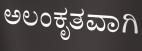
ಅಲಂಕೃತವಾಗಿ